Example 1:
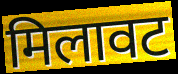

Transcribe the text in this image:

मिलावट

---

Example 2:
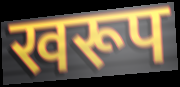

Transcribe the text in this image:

खरूप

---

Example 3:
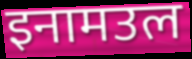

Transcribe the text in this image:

इनामउल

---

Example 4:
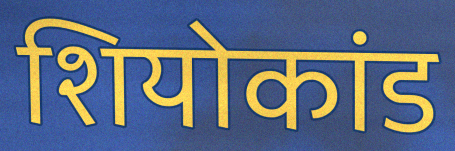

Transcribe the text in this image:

शियोकांड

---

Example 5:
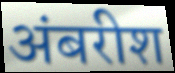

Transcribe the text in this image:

अंबरीश